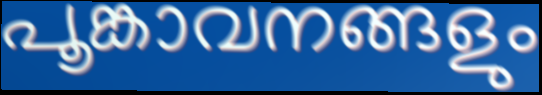
പൂങ്കാവനങ്ങളും